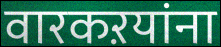
वारकऱयांना